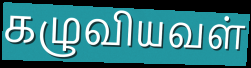
கழுவியவள்